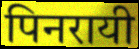
पिनरायी